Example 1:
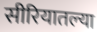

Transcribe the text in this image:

सीरियातल्या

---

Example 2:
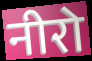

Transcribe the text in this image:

नीरो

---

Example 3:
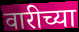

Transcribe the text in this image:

वारीच्या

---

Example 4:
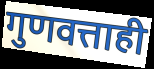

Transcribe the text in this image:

गुणवत्ताही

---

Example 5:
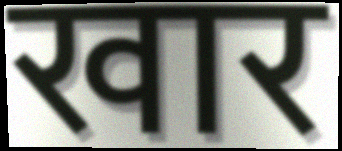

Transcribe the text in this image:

खार